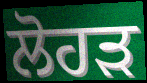
ਲੋਹੜ